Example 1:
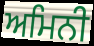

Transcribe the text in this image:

ਅਮਿਨੀ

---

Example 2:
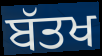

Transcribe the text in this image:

ਬੱਤਖ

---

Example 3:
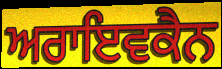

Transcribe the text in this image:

ਅਰਾਇਵਕੈਨ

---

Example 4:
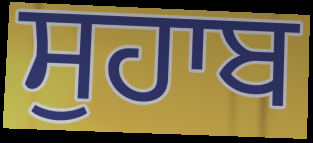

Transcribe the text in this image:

ਸੁਹਾਬ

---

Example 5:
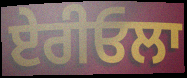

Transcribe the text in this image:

ਏਰੀਓਲਾ